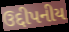
ઉદ્દીપનીય